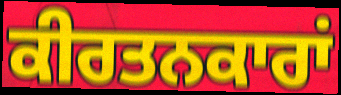
ਕੀਰਤਨਕਾਰਾਂ